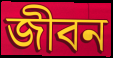
জীবন